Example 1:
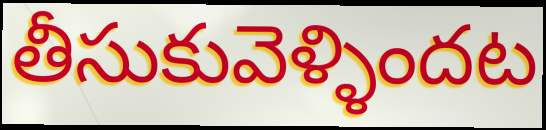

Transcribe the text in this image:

తీసుకువెళ్ళిందట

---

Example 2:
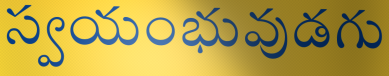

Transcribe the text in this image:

స్వయంభువుడగు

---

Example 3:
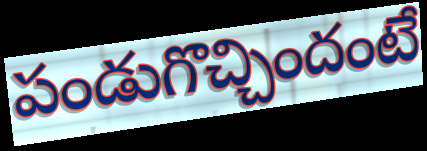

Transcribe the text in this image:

పండుగొచ్చిందంటే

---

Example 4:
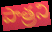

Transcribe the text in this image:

పాత్రని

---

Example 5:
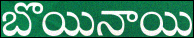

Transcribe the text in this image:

బొయినాయి